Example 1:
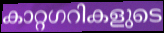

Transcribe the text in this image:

കാറ്റഗറികളുടെ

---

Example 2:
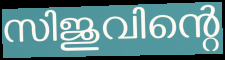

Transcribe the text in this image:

സിജുവിന്റെ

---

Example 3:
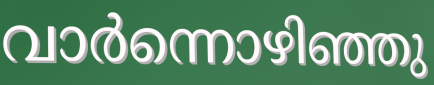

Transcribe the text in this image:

വാർന്നൊഴിഞ്ഞു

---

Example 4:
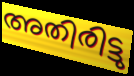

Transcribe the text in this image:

അതിരിട്ടു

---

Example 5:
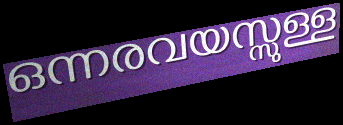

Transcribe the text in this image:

ഒന്നരവയസ്സുള്ള